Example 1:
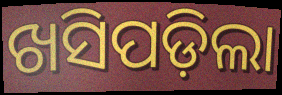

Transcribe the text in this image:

ଖସିପଡ଼ିଲା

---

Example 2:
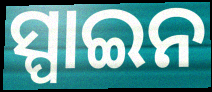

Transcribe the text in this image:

ସ୍ପାଇନ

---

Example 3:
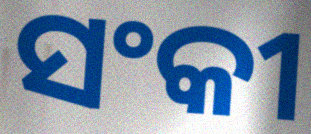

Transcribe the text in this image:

ସଂକୀ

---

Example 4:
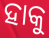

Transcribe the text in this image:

ହାକୁ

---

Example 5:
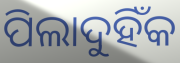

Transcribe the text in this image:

ପିଲାଦୁହିଁକ